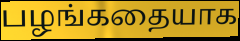
பழங்கதையாக